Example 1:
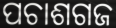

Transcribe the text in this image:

ପଚାଶଗଜ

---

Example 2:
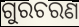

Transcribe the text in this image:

ଗୁରଚରଣ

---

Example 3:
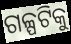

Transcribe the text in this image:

ଗଳ୍ପଟିକୁ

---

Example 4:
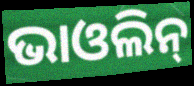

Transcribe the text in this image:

ଭାଓଲିନ୍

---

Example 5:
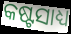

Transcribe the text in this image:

କଷ୍ଟସାଧ୍ଯ